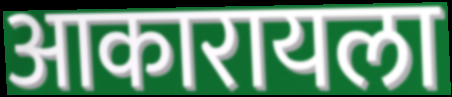
आकारायला